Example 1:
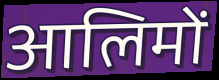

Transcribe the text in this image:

आलिमों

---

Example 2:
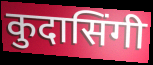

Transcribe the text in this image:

कुदासिंगी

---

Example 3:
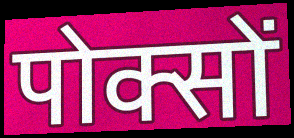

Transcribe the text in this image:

पोक्सों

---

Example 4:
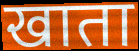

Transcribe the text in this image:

खाता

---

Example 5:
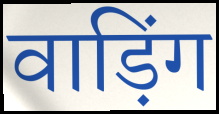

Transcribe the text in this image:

वाड़िंग